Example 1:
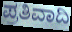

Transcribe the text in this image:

ಪ್ರತಿವಾದಿ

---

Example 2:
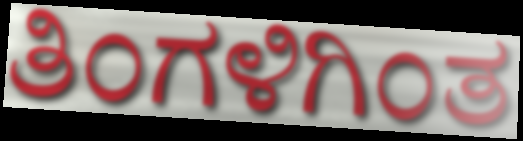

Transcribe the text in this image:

ತಿಂಗಳಿಗಿಂತ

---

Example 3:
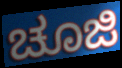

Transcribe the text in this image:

ಚೂಜಿ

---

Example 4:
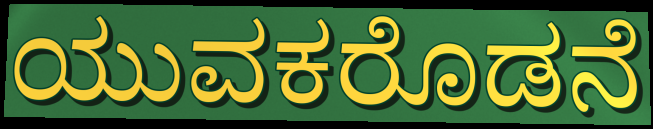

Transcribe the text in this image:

ಯುವಕರೊಡನೆ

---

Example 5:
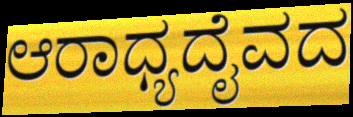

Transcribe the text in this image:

ಆರಾಧ್ಯದೈವದ